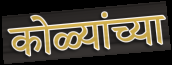
कोळ्यांच्या